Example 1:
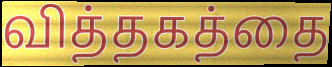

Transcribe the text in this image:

வித்தகத்தை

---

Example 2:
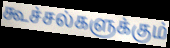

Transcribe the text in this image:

கூச்சல்களுக்கும்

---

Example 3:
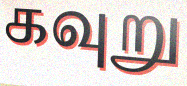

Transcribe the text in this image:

கவுறு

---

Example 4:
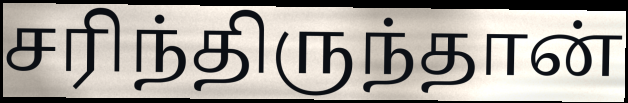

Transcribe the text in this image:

சரிந்திருந்தான்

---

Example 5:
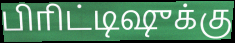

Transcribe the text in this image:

பிரிட்டிஷுக்கு